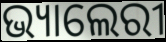
ଭ୍ୟାଲେରୀ